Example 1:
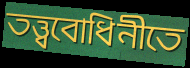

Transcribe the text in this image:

তত্ত্ববোধিনীতে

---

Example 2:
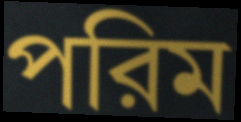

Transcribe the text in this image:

পরিম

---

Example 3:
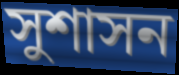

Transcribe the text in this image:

সুশাসন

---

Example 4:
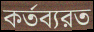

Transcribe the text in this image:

কর্তব্যরত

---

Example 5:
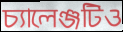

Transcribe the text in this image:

চ্যালেঞ্জটিও